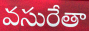
వసురేతా